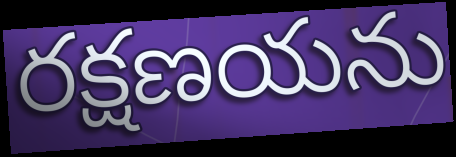
రక్షణయను